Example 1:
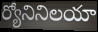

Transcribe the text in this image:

ర్యోనినిలయా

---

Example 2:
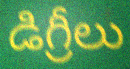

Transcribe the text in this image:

డిగ్రీలు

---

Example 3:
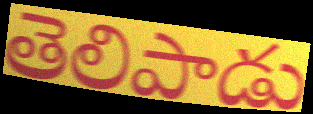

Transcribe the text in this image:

తెలిపాడు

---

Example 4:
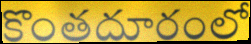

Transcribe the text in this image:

కొంతదూరంలో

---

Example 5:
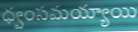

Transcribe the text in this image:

ధ్వంసమయ్యాయి